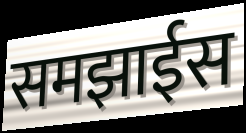
समझाईस